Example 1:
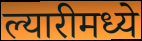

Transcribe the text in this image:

ल्यारीमध्ये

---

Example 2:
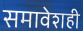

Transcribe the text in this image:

समावेशही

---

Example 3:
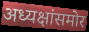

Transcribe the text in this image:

अध्यक्षांसमोर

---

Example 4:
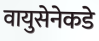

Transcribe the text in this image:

वायुसेनेकडे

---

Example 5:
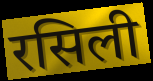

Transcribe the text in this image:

रसिली